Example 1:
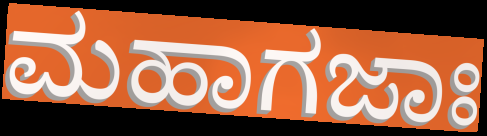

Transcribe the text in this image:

ಮಹಾಗಜಾಃ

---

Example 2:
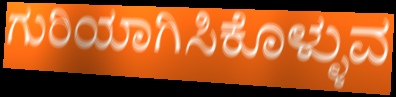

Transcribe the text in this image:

ಗುರಿಯಾಗಿಸಿಕೊಳ್ಳುವ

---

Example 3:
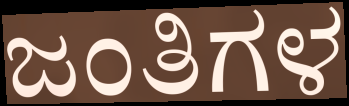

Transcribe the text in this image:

ಜಂತಿಗಳ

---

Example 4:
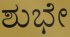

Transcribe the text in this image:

ಶುಭೇ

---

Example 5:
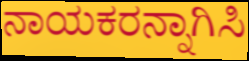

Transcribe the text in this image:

ನಾಯಕರನ್ನಾಗಿಸಿ